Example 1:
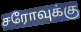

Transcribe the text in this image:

சரோவுக்கு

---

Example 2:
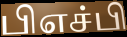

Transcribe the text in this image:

பிஎச்பி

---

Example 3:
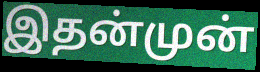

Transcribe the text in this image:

இதன்முன்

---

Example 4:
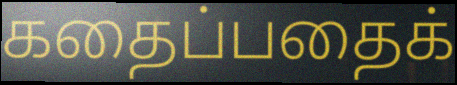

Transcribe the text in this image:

கதைப்பதைக்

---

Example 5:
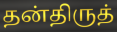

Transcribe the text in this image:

தன்திருத்